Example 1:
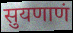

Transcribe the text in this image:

सुयणाणं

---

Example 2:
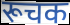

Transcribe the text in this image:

रूचक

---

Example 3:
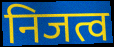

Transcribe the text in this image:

निजत्व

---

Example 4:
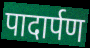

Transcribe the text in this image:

पादार्पण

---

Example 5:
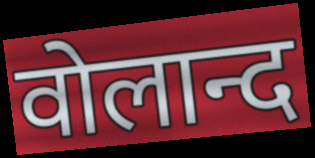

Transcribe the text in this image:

वोलान्द